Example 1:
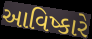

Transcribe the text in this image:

આવિષ્કારે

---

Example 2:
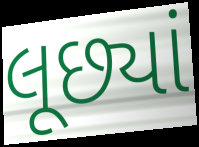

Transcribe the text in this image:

લૂછ્યાં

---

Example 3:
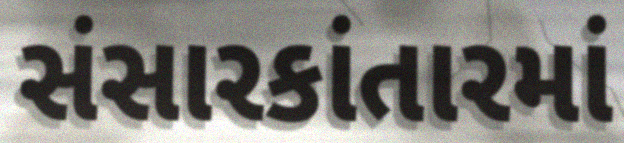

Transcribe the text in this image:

સંસારકાંતારમાં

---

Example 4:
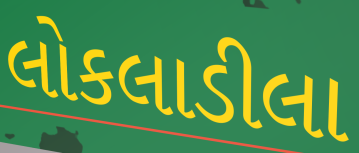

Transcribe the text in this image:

લોકલાડીલા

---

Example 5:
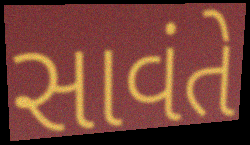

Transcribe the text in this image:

સાવંતે